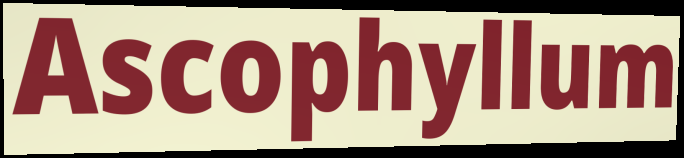
Ascophyllum